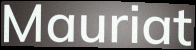
Mauriat